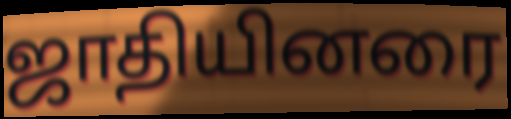
ஜாதியினரை